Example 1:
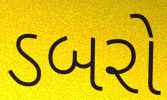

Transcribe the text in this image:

ડબરો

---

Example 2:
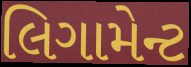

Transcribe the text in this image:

લિગામેન્ટ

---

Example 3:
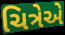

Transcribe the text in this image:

ચિત્રેએ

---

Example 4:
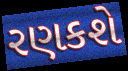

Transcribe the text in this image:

રણકશે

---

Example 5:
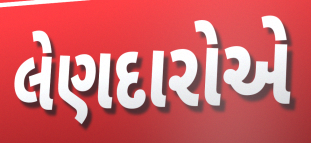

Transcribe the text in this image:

લેણદારોએ